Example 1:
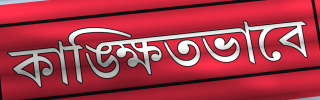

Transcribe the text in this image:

কাঙ্ক্ষিতভাবে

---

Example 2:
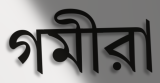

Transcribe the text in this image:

গমীরা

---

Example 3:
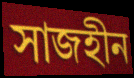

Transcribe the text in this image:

সাজহীন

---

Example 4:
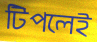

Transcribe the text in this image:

টিপলেই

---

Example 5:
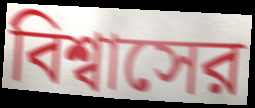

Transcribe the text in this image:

বিশ্বাসের